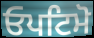
ਓਪਟਿਮੋ